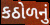
કઠોળનું